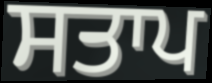
ਸਤਾਪ